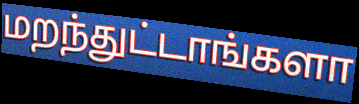
மறந்துட்டாங்களா